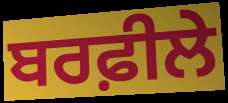
ਬਰਫ਼ੀਲੇ